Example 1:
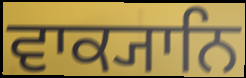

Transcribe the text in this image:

ਵਾਕ੍ਯਾਨਿ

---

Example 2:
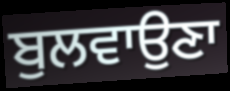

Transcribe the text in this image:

ਬੁਲਵਾਉਣਾ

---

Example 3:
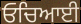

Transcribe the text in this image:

ਓਚਿਆਈ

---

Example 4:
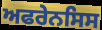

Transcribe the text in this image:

ਅਫਰੇਨਸਿਸ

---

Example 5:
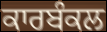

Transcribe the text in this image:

ਕਾਰਬੰਕਲ